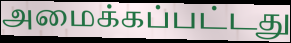
அமைக்கப்பட்டது